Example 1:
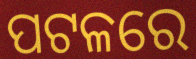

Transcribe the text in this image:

ପଟଳରେ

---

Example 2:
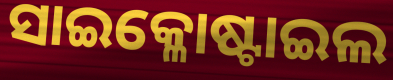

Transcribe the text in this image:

ସାଇକ୍ଳୋଷ୍ଟାଇଲ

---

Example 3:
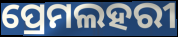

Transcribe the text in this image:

ପ୍ରେମଲହରୀ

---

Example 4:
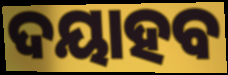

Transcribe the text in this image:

ଦୟାହବ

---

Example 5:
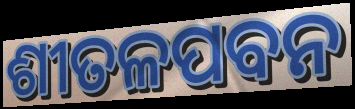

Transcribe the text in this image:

ଶୀତଳପବନ